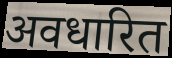
अवधारित